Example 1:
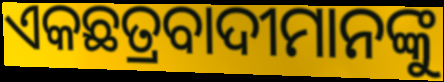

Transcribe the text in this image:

ଏକଛତ୍ରବାଦୀମାନଙ୍କୁ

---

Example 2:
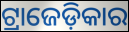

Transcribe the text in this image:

ଟ୍ରାଜେଡ଼ିକାର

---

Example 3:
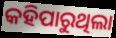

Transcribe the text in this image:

କହିପାରୁଥିଲା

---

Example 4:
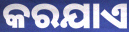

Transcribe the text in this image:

କରଯାଏ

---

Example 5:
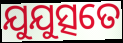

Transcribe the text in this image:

ଯୁଯୁତ୍ସତେ